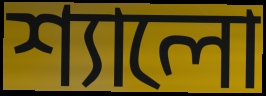
শ্যালো